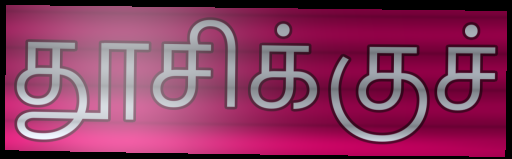
தூசிக்குச்